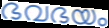
ഭവഭയം